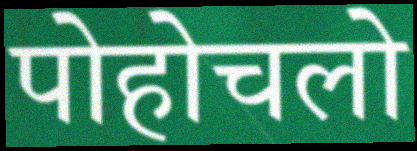
पोहोचलो